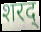
शरद्